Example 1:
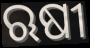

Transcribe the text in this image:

ଋଷୀ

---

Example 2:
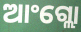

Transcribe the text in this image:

ଆଂଗ୍ଲୋ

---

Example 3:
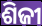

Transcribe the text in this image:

ଶିଜୀ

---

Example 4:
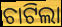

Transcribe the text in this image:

ଚାଟିଲା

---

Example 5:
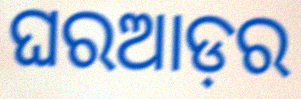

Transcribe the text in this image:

ଘରଆଡ଼ର